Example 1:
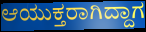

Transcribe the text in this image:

ಆಯುಕ್ತರಾಗಿದ್ದಾಗ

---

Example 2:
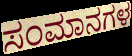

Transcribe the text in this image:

ಸಂಮಾನಗಳ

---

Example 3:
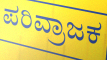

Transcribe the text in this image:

ಪರಿವ್ರಾಜಕ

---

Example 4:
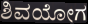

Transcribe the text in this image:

ಶಿವಯೋಗ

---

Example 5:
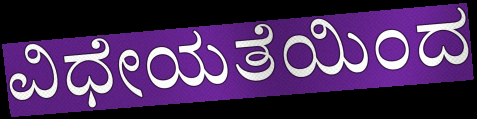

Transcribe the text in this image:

ವಿಧೇಯತೆಯಿಂದ